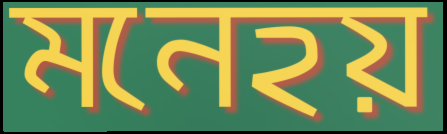
মনেহয়